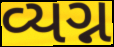
વ્યગ્ન